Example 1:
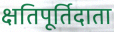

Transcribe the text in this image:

क्षतिपूर्तिदाता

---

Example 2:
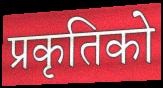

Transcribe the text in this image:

प्रकृतिको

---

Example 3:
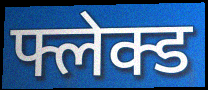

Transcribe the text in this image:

फ्लेक्ड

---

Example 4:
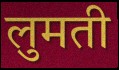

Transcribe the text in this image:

लुमती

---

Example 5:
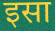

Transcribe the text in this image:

इसा